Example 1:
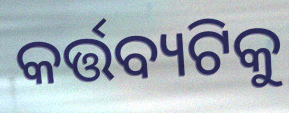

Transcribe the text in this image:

କର୍ତ୍ତବ୍ୟଟିକୁ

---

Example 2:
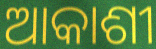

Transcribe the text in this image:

ଆକାଶୀ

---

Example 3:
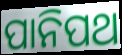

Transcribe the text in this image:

ପାନିପଥ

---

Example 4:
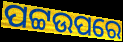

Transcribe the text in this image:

ପଟ୍ଟଉପରେ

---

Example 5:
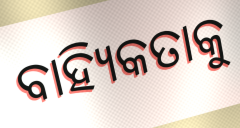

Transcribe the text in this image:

ବାହ୍ୟିକତାକୁ